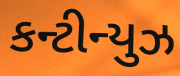
કન્ટીન્યુઝ